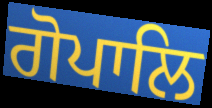
ਗੋਪਾਲਿ